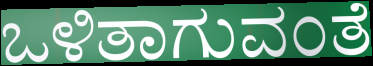
ಒಳಿತಾಗುವಂತೆ